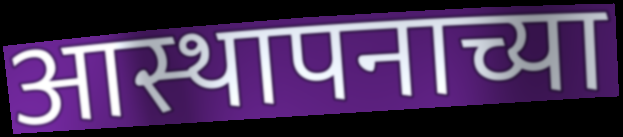
आस्थापनाच्या